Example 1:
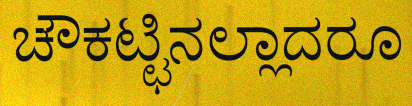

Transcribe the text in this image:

ಚೌಕಟ್ಟಿನಲ್ಲಾದರೂ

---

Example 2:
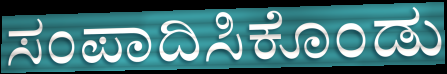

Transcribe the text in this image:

ಸಂಪಾದಿಸಿಕೊಂಡು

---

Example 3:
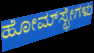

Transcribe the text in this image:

ಹೋಮ್‌ಸ್ಟೇಗಳು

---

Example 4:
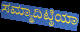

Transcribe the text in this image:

ಸಮ್ಮಾದಿಟ್ಠಿಯಾ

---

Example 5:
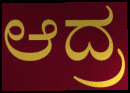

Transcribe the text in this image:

ಆದ್ರ